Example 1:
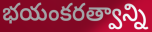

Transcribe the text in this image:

భయంకరత్వాన్ని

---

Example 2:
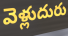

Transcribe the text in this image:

వెళ్లుదురు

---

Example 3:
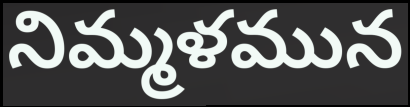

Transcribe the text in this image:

నిమ్మళమున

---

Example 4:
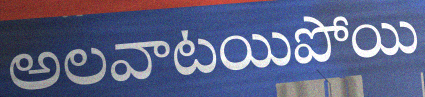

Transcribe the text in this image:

అలవాటయిపోయి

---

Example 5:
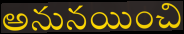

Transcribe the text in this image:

అనునయించి